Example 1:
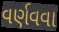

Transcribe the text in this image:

વર્ણવવા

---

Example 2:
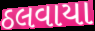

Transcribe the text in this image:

ઠલવાયા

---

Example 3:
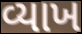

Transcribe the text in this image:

વ્યાખ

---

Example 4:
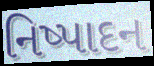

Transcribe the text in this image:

નિષ્પાદન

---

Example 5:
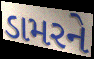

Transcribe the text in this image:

ડામરને